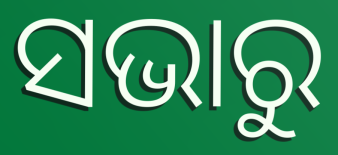
ସଭାରୁ